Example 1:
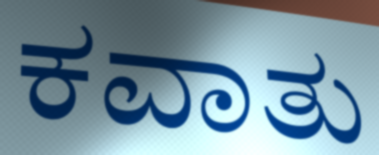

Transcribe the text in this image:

ಕವಾತು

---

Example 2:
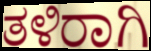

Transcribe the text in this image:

ತಳಿರಾಗಿ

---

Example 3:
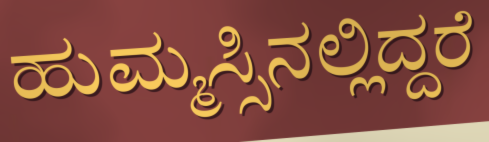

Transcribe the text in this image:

ಹುಮ್ಮಸ್ಸಿನಲ್ಲಿದ್ದರೆ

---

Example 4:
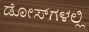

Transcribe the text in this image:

ಡೋಸ್‌ಗಳಲ್ಲಿ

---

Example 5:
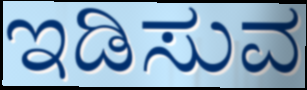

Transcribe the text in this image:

ಇಡಿಸುವ